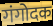
गंगोदक